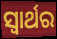
ସ୍ଵାର୍ଥର